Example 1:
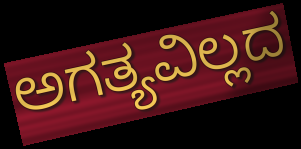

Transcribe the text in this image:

ಅಗತ್ಯವಿಲ್ಲದ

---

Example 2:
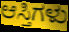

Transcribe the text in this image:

ಆಸ್ತಿಗಳು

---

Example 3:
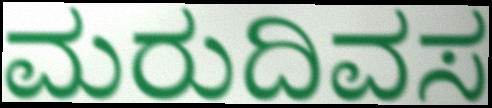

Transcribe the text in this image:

ಮರುದಿವಸ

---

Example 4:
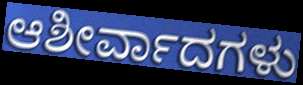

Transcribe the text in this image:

ಆಶೀರ್ವಾದಗಳು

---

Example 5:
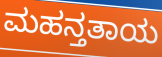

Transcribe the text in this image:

ಮಹನ್ತತಾಯ